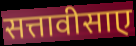
सत्तावीसाए